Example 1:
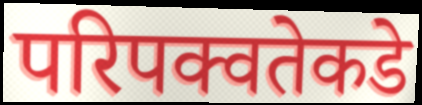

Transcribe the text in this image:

परिपक्वतेकडे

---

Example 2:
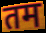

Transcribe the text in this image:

तम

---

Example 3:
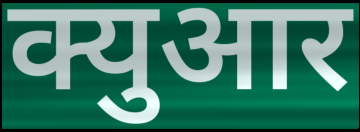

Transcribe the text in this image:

क्युआर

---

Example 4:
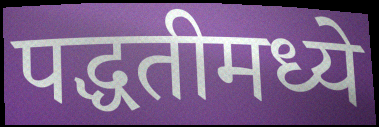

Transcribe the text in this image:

पद्धतीमध्ये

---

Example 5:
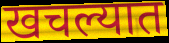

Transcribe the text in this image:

खचल्यात